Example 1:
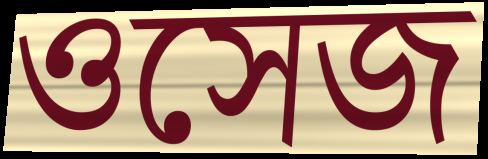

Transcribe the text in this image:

ওসেজ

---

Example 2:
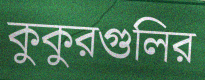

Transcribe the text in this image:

কুকুরগুলির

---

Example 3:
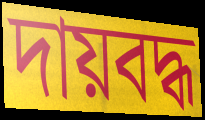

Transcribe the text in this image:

দায়বদ্ধ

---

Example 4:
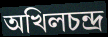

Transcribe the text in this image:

অখিলচন্দ্র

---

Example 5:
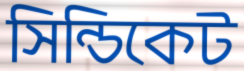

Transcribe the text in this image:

সিন্ডিকেট